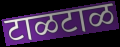
टाळटाळ